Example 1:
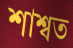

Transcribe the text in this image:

শাশ্বত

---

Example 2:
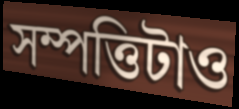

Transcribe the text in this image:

সম্পত্তিটাও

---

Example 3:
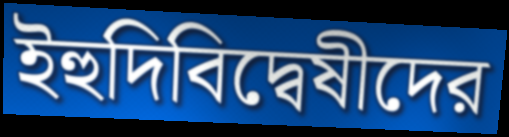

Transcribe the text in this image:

ইহুদিবিদ্বেষীদের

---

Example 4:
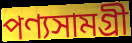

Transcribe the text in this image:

পণ্যসামগ্রী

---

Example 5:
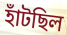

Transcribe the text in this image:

হাঁটছিল